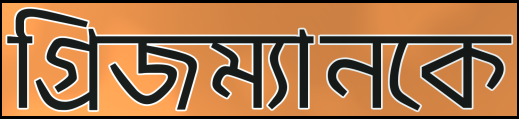
গ্রিজম্যানকে